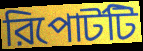
রিপোর্টটি